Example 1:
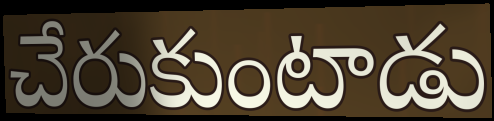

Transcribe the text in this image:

చేరుకుంటాడు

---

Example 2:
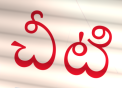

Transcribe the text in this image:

చీటి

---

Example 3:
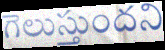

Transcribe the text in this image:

గెలుస్తుందని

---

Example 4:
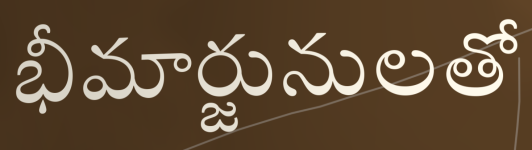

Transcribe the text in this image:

భీమార్జునులతో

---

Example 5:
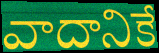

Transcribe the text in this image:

వాదానికే